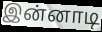
இன்னாடி